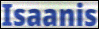
Isaanis